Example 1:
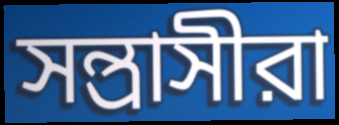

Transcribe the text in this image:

সন্ত্রাসীরা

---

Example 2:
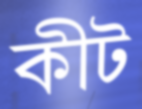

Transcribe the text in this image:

কীট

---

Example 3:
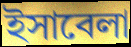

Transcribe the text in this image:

ইসাবেলা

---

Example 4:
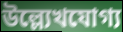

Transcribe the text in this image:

উল্ল্যেখযোগ্য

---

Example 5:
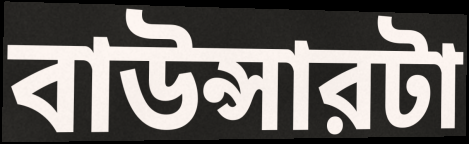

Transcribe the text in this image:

বাউন্সারটা